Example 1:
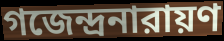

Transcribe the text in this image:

গজেন্দ্রনারায়ণ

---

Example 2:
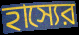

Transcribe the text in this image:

হাস্যের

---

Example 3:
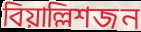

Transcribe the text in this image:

বিয়াল্লিশজন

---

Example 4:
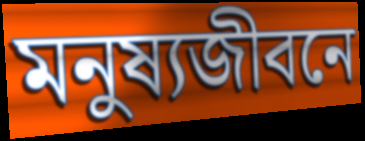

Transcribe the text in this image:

মনুষ্যজীবনে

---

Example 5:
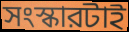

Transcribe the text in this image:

সংস্কারটাই